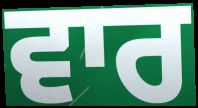
ਵਾਰ